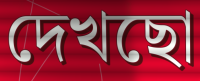
দেখছো